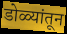
डोळ्यांतून